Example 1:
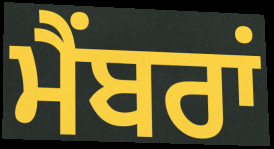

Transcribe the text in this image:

ਮੈਂਬਰਾਂ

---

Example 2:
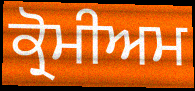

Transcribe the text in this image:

ਕ੍ਰੋਮੀਅਮ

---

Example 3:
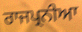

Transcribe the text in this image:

ਰਾਜਪ੍ਰਨੀਆ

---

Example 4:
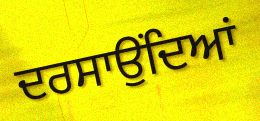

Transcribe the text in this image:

ਦਰਸਾਉਂਦਿਆਂ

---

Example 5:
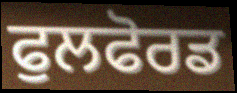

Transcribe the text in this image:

ਫੁਲਫੋਰਡ